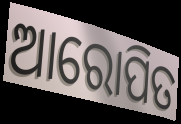
ଆରୋପିତ